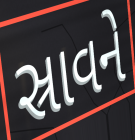
સ્રાવને